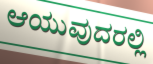
ಆಯುವುದರಲ್ಲಿ